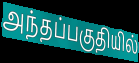
அந்தப்பகுதியில்